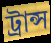
ট্ৰান্স